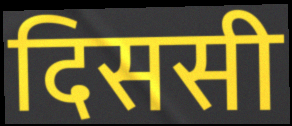
दिससी